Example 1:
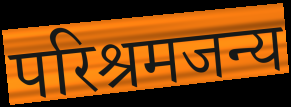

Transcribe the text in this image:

परिश्रमजन्य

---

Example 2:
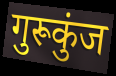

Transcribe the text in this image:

गुरूकुंज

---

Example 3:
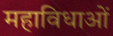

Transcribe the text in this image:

महाविधाओं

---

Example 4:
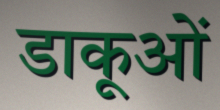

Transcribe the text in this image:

डाकूओं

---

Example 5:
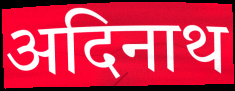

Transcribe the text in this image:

अदिनाथ